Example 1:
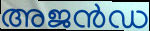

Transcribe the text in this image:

അജൻഡ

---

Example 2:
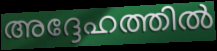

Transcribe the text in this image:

അദ്ദേഹത്തിൽ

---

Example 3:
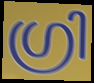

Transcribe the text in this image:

ഗ്രി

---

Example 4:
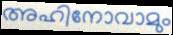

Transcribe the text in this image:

അഹിനോവാമും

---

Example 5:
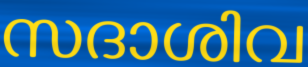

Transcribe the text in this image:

സദാശിവ